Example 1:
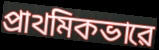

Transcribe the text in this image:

প্ৰাথমিকভাৱে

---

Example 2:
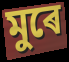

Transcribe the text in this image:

মুৰে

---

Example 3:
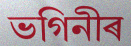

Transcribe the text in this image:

ভগিনীৰ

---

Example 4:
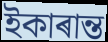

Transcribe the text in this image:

ইকাৰান্ত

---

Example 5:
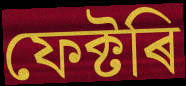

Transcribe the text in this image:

ফেক্টৰি